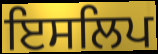
ਇਸਲਿਪ